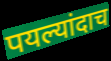
पयल्यांदाच